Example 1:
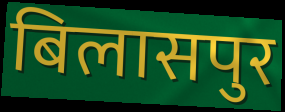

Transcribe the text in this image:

बिलासपुर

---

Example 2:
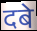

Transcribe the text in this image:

दबे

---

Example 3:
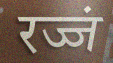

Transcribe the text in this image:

रज्जं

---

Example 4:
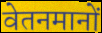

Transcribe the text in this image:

वेतनमानों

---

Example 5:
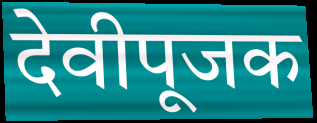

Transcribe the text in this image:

देवीपूजक